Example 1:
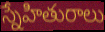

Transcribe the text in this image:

స్నేహితురాలు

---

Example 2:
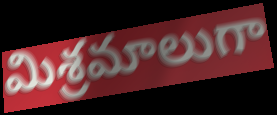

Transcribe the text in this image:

మిశ్రమాలుగా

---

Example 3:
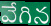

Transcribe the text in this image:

వేగిన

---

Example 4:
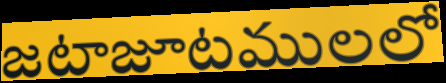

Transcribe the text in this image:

జటాజూటములలో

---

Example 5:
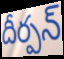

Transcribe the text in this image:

దీర్పన్